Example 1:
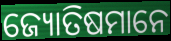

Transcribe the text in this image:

ଜ୍ୟୋତିଷମାନେ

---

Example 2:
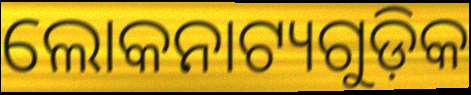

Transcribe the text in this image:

ଲୋକନାଟ୍ୟଗୁଡ଼ିକ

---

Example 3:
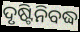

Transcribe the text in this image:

ଦୃଷ୍ଟିନିବଦ୍ଧ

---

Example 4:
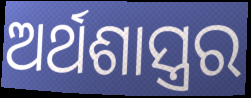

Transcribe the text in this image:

ଅର୍ଥଶାସ୍ତ୍ରର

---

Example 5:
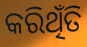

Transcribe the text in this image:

କରିଥିଁତି